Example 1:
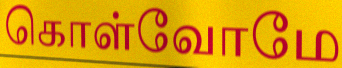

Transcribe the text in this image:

கொள்வோமே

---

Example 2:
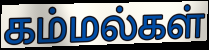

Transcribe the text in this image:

கம்மல்கள்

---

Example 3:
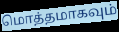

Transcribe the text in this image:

மொத்தமாகவும்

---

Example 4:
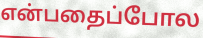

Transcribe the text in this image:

என்பதைப்போல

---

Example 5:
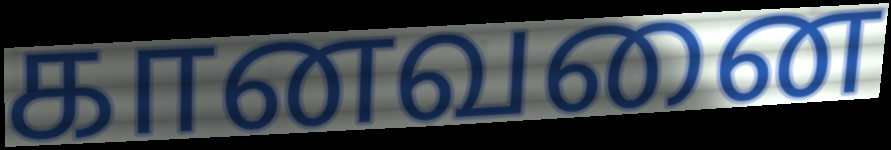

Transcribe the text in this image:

கானவனை